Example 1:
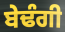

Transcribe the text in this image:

ਬੇਢੰਗੀ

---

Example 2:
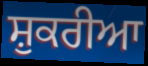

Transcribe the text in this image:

ਸ਼ੁਕਰੀਆ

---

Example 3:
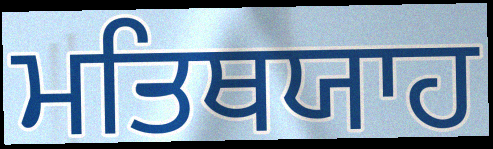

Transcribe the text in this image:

ਮਤਿਥਯਾਹ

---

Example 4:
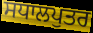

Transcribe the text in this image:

ਸਧਾਲਪੁਤਰ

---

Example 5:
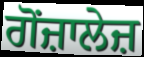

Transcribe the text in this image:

ਗੋਂਜ਼ਾਲੇਜ਼